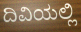
ದಿವಿಯಲ್ಲಿ